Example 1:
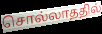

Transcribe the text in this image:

சொல்லாததில்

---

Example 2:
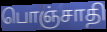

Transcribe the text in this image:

பொஞ்சாதி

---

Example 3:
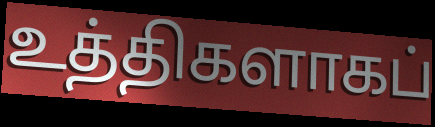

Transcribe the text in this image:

உத்திகளாகப்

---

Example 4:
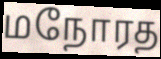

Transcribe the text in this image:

மநோரத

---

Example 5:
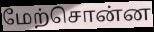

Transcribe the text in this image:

மேற்சொன்ன